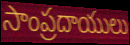
సాంప్రదాయులు